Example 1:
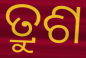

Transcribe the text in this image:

ତ୍ରୁଶ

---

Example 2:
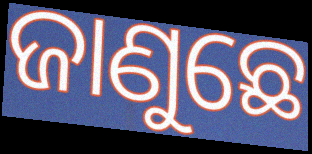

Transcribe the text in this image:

ଜାଣୁଛେ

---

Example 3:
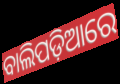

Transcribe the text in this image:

ବାଲିପଡ଼ିଆରେ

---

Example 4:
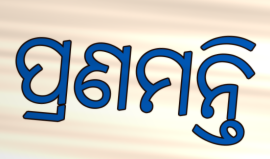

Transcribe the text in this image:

ପ୍ରଣମନ୍ତି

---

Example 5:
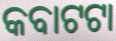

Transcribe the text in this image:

କବାଟଟା